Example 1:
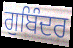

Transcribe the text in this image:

ਗੁਬਿੰਦਰ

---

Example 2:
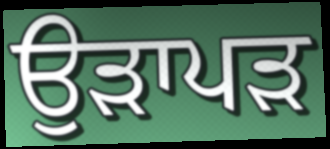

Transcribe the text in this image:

ਉੜਾਪੜ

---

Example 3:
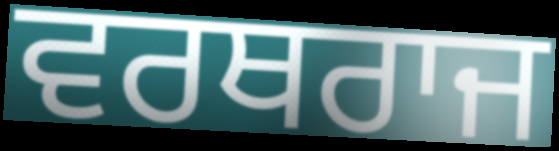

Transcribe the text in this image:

ਵਰਥਰਾਜ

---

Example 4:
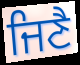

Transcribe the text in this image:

ਜਿਣੈ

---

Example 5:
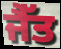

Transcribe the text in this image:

ਜੈੱਤ